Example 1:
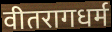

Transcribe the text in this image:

वीतरागधर्म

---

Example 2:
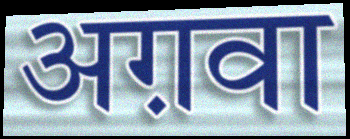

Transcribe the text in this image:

अग़वा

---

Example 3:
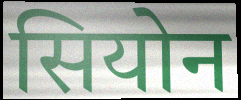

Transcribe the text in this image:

सियोन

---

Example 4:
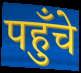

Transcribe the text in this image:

पहुँचे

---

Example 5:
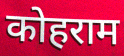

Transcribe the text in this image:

कोहराम